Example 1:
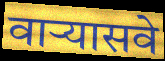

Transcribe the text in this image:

वाऱ्यासवे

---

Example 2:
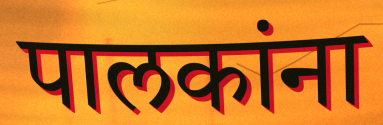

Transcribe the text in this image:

पालकांना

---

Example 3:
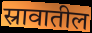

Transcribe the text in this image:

स्रावातील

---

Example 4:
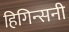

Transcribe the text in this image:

हिगिन्सनी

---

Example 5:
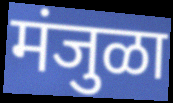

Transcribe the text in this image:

मंजुळा